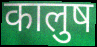
कालुष